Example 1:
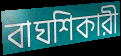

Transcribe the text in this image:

বাঘশিকারী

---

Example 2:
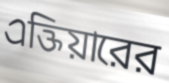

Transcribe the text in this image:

এক্তিয়ারের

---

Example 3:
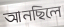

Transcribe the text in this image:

আনছিলে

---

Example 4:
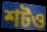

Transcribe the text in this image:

শটও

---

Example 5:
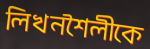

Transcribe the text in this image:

লিখনশৈলীকে